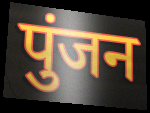
पुंजन